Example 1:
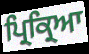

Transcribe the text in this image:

ਪ੍ਰਿਕ੍ਰਿਆ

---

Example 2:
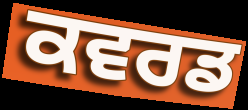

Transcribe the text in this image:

ਕਵਰਡ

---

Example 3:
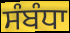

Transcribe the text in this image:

ਸੰਬੰਧਾ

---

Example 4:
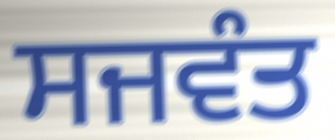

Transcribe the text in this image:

ਸਜਵੰਤ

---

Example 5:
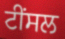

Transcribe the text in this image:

ਟੀਂਸਲ